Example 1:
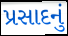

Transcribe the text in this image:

પ્રસાદનું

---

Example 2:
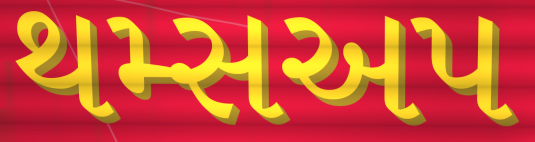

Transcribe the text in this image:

થમ્સઅપ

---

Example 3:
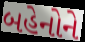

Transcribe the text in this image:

બહેનોને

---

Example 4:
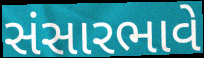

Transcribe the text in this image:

સંસારભાવે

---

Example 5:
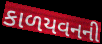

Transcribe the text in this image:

કાળયવનની